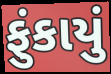
ફુંકાયું